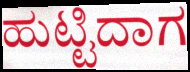
ಹುಟ್ಟಿದಾಗ